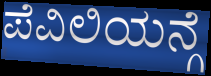
ಪೆವಿಲಿಯನ್ಗೆ